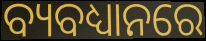
ବ୍ୟବଧ୍ୟାନରେ